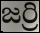
జర్రి